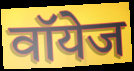
वॉयेज